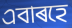
এবাৰহে